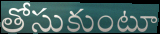
తోసుకుంటూ